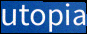
utopia